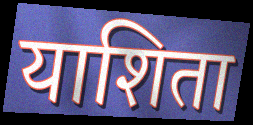
याशिता